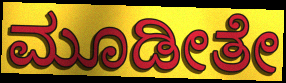
ಮೂಡೀತೇ